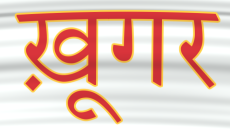
ख़ूगर